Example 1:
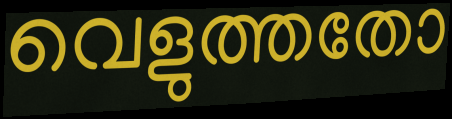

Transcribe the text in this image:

വെളുത്തതോ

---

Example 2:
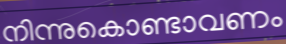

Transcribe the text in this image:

നിന്നുകൊണ്ടാവണം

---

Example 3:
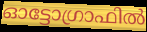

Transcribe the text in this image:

ഓട്ടോഗ്രാഫിൽ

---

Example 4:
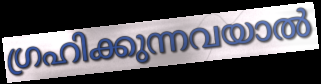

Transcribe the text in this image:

ഗ്രഹിക്കുന്നവയാൽ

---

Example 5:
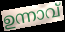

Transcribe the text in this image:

ഉന്നാവ്